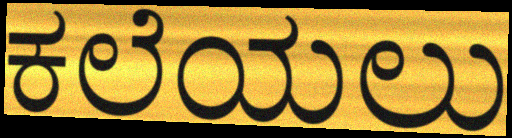
ಕಲೆಯಲು